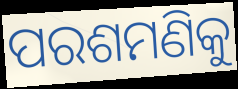
ପରଶମଣିକୁ